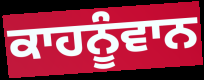
ਕਾਹਨੂੰਵਾਨ